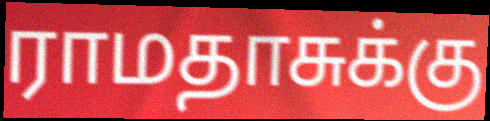
ராமதாசுக்கு